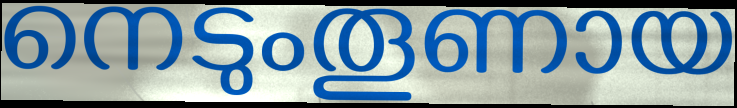
നെടുംതൂണായ